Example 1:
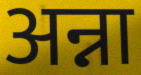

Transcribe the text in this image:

अन्ना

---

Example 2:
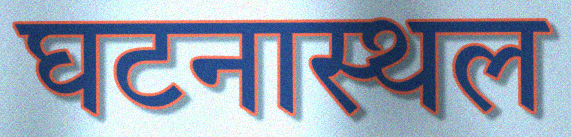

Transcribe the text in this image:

घटनास्थल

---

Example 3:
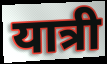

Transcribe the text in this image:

यात्री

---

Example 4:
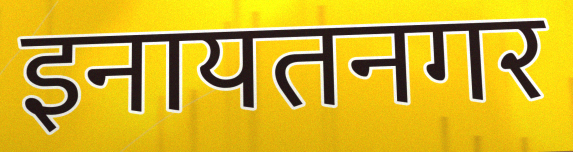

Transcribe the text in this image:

इनायतनगर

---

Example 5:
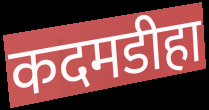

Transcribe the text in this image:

कदमडीहा